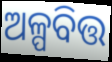
ଅଳ୍ପବିତ୍ତ